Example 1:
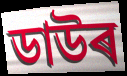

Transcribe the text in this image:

ডাউৰ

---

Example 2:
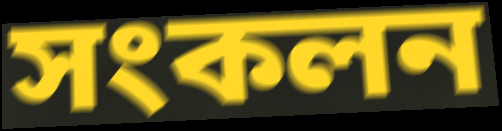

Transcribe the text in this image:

সংকলন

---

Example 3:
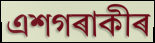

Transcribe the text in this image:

এশগৰাকীৰ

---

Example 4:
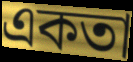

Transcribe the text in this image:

একতা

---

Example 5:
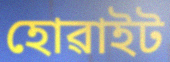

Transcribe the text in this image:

হোৱাইট